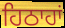
ਹਿਠਾਹਾਂ